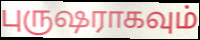
புருஷராகவும்